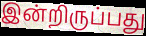
இன்றிருப்பது